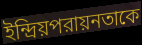
ইন্দ্রিয়পরায়নতাকে